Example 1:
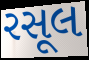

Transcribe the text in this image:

રસૂલ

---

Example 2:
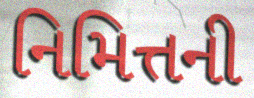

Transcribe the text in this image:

નિમિત્તની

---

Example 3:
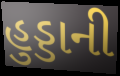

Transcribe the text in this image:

હુડ્ડાની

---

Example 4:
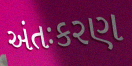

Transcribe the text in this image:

અંતઃકરણ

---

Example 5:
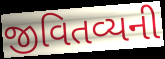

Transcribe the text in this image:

જીવિતવ્યની